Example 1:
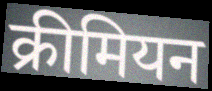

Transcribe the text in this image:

क्रीमियन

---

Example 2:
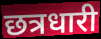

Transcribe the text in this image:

छत्रधारी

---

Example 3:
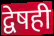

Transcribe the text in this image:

द्वेषही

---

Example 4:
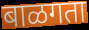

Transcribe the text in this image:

बाळगता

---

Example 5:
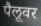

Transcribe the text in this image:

पैलूवर